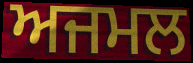
ਅਜਮਲ